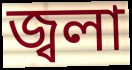
জ্বলা